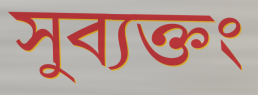
সুব্যক্তং